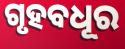
ଗୃହବଧୂର